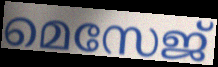
മെസേജ്